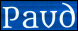
Paud